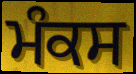
ਮੰਕਸ